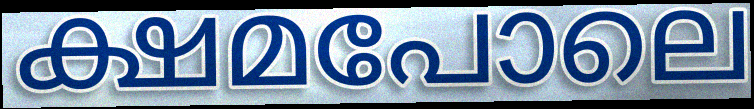
ക്ഷമപോലെ